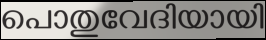
പൊതുവേദിയായി